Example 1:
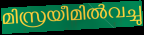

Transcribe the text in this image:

മിസ്രയീമിൽവച്ചു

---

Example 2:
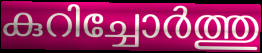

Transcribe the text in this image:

കുറിച്ചോർത്തു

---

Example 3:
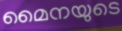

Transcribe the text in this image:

മൈനയുടെ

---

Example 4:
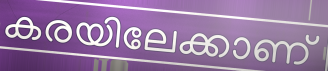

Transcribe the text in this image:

കരയിലേക്കാണ്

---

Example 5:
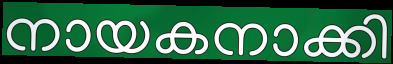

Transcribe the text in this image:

നായകനാക്കി